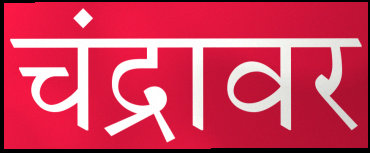
चंद्रावर